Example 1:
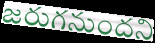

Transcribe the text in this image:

జరుగనుందని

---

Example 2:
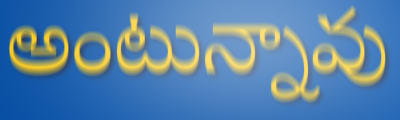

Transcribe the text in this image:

అంటున్నావు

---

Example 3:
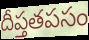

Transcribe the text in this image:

దీప్తతపసం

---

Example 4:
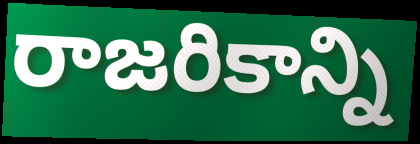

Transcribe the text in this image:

రాజరికాన్ని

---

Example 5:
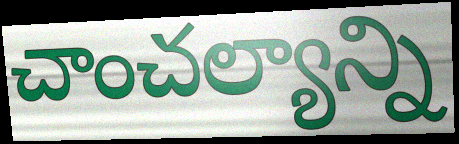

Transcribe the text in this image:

చాంచల్యాన్ని